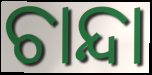
ଚାନ୍ଦା